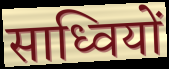
साध्वियों